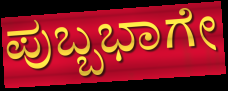
ಪುಬ್ಬಭಾಗೇ